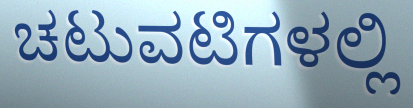
ಚಟುವಟಿಗಳಲ್ಲಿ